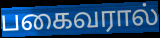
பகைவரால்